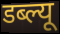
डब्ल्यू